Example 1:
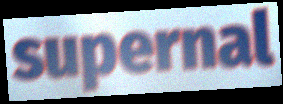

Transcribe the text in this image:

supernal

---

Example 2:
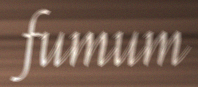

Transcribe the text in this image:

fumum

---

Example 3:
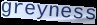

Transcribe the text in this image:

greyness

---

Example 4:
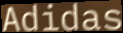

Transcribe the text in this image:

Adidas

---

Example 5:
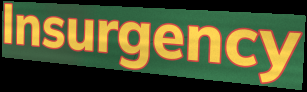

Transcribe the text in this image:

Insurgency